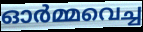
ഓർമ്മവെച്ച